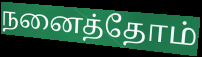
நனைத்தோம்